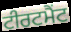
ਟੀਰਟਮੈਂਟ